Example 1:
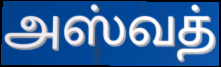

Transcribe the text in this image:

அஸ்வத்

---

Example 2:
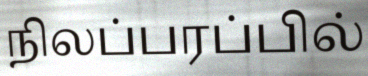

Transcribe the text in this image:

நிலப்பரப்பில்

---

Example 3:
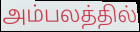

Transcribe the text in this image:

அம்பலத்தில்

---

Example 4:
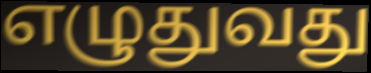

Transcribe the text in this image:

எழுதுவது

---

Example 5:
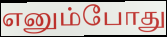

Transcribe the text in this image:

எனும்போது